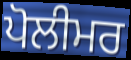
ਪੋਲੀਮਰ